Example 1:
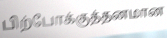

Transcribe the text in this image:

பிற்போக்குத்தனமான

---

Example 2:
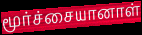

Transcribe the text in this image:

மூர்ச்சையானாள்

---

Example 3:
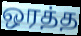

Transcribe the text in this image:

ஒரத்த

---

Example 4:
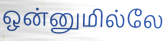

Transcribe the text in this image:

ஒன்னுமில்லே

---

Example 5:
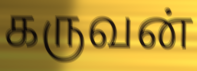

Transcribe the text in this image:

கருவன்